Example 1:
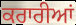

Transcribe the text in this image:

ਕਰਾਰੀਆਂ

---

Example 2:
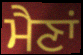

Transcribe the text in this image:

ਮੈਣਾਂ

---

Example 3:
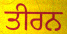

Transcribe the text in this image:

ਤੀਰਨ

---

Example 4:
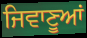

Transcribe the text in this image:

ਜਿਵਾਣੂਆਂ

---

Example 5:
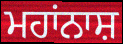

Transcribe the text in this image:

ਮਹਾਂਨਾਸ਼